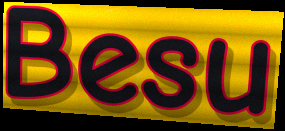
Besu